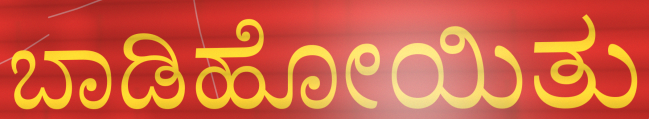
ಬಾಡಿಹೋಯಿತು